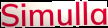
Simulla